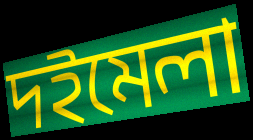
দইমেলা